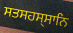
ਸਤਸਹਸ੍ਸਾਨਿ